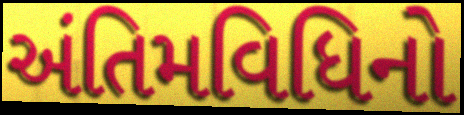
અંતિમવિધિનો